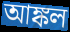
আঙ্কল